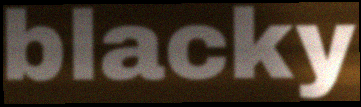
blacky